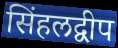
सिंहलद्वीप